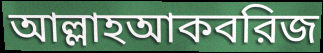
আল্লাহআকবরিজ